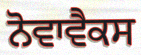
ਨੋਵਾਵੈਕਸ